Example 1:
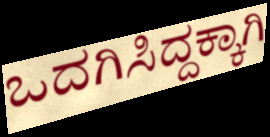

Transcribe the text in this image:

ಒದಗಿಸಿದ್ದಕ್ಕಾಗಿ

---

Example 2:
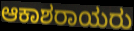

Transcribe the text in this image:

ಆಕಾಶರಾಯರು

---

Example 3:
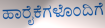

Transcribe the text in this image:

ಹಾರೈಕೆಗಳೊಂದಿಗೆ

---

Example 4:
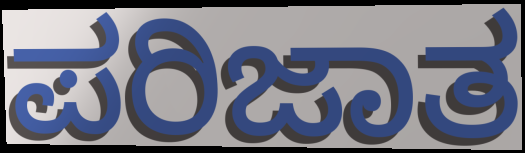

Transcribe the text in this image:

ಪರಿಜಾತ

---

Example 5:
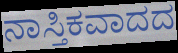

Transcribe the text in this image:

ನಾಸ್ತಿಕವಾದದ